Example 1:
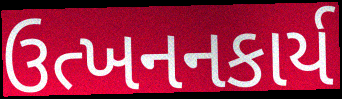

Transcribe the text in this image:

ઉત્ખનનકાર્ય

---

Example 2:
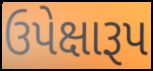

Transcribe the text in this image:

ઉપેક્ષારૂપ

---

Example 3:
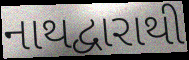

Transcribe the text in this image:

નાથદ્વારાથી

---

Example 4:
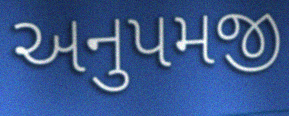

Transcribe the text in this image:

અનુપમજી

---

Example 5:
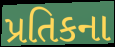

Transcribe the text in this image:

પ્રતિકના